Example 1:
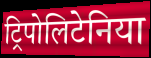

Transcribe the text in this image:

ट्रिपोलिटेनिया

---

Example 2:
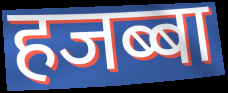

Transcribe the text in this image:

हजब्बा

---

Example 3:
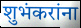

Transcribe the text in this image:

शुभंकरांना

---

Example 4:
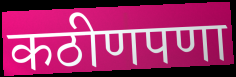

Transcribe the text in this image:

कठीणपणा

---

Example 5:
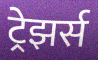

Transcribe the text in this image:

ट्रेझर्स